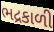
ભદ્રકાળી